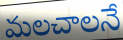
మలచాలనే